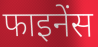
फाइनेंस